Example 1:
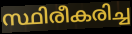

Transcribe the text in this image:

സ്ഥിരീകരിച്ച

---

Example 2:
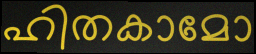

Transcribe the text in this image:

ഹിതകാമോ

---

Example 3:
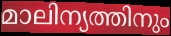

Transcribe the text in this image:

മാലിന്യത്തിനും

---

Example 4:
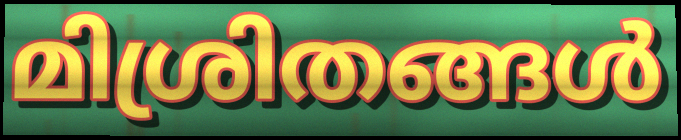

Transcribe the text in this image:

മിശ്രിതങ്ങൾ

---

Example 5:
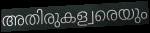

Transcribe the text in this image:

അതിരുകള്വരെയും